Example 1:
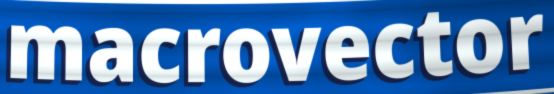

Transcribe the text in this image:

macrovector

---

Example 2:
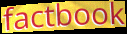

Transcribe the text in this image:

factbook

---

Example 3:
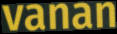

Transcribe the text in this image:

vanan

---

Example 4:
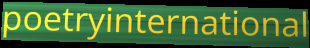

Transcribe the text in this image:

poetryinternational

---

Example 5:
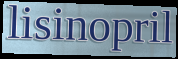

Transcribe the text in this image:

lisinopril